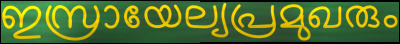
ഇസ്രായേല്യപ്രമുഖരും